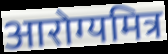
आरोग्यमित्र